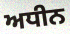
ਅਧੀਨ